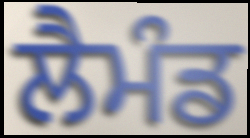
ਲੈਮੰਡ